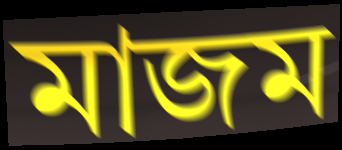
মাজম